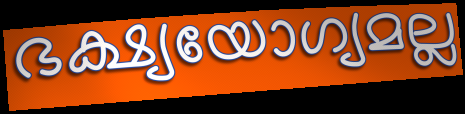
ഭക്ഷ്യയോഗ്യമല്ല